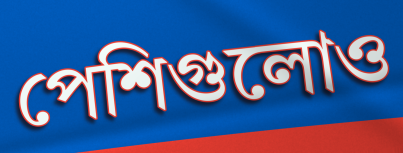
পেশিগুলোও